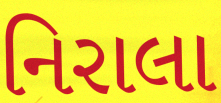
નિરાલા